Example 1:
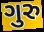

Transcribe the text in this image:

ગુરુ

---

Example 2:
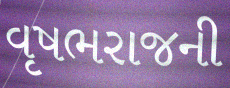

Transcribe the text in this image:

વૃષભરાજની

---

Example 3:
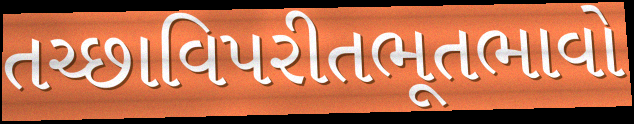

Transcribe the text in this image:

તચ્છાવિપરીતભૂતભાવો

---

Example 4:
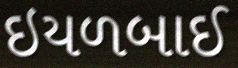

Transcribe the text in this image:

ઇયળબાઈ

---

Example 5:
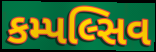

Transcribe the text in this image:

કમ્પલ્સિવ